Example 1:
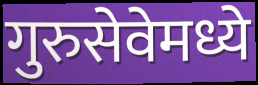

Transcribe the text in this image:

गुरुसेवेमध्ये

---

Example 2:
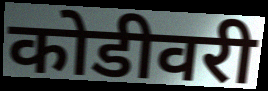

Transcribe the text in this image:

कोडीवरी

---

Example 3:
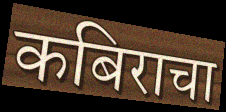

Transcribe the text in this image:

कबिराचा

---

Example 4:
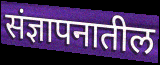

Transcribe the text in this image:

संज्ञापनातील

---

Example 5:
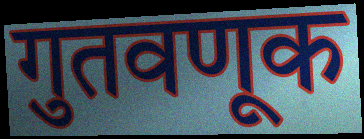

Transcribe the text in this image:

गुतवणूक